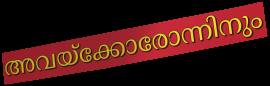
അവയ്ക്കോരോന്നിനും